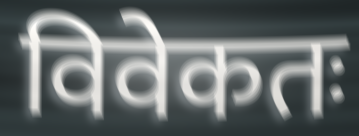
विवेकतः